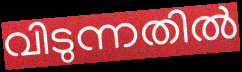
വിടുന്നതിൽ